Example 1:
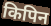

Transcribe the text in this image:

किपिन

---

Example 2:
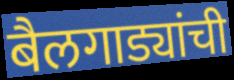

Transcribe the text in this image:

बैलगाड्यांची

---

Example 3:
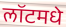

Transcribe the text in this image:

लॉटमधे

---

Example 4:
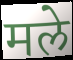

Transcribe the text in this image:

मले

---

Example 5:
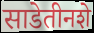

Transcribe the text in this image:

साडेतीनशे